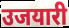
उजयारी